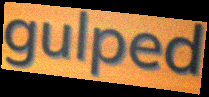
gulped